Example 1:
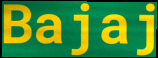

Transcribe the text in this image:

Bajaj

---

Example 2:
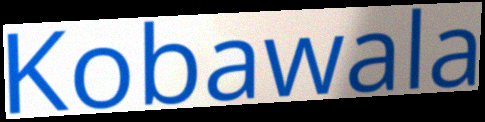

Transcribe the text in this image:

Kobawala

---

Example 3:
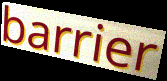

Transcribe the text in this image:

barrier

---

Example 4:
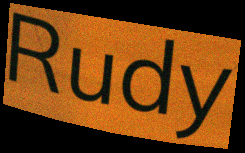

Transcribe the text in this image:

Rudy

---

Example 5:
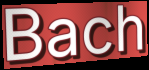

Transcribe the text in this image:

Bach